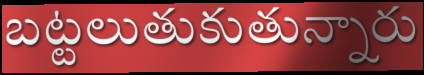
బట్టలుతుకుతున్నారు